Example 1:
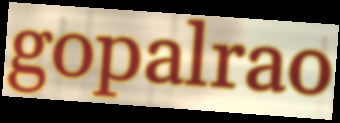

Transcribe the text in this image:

gopalrao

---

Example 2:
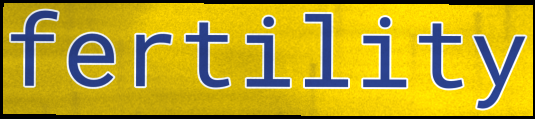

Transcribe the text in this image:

fertility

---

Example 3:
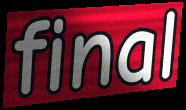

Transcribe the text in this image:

final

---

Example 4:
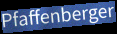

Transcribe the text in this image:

Pfaffenberger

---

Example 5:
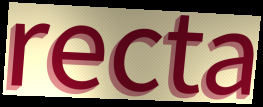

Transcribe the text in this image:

recta